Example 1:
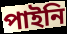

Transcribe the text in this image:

পাইনি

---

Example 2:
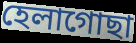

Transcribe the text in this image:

হেলাগোছা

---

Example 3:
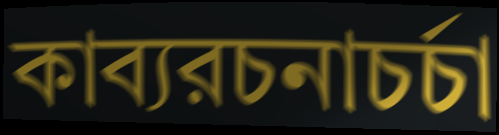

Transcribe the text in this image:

কাব্যরচনাচর্চা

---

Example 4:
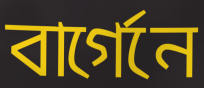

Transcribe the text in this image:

বার্গেনে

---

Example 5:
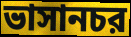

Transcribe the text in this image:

ভাসানচর